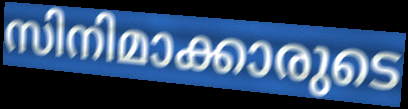
സിനിമാക്കാരുടെ